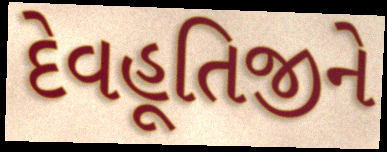
દેવહૂતિજીને